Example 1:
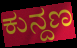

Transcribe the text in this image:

ಕುನ್ದಣ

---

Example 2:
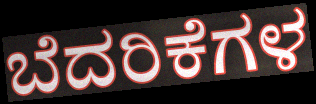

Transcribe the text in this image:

ಬೆದರಿಕೆಗಳ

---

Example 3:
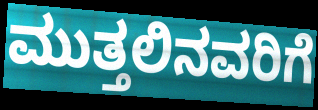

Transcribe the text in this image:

ಮುತ್ತಲಿನವರಿಗೆ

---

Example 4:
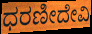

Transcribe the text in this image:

ಧರಣೀದೇವಿ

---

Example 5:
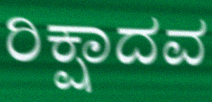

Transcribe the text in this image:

ರಿಕ್ಷಾದವ